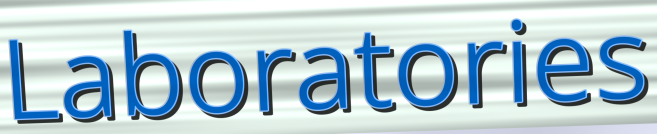
Laboratories